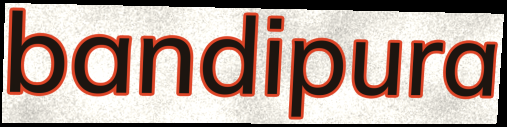
bandipura